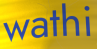
wathi